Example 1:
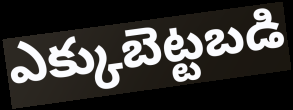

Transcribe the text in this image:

ఎక్కుబెట్టబడి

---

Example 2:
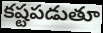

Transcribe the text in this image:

కష్టపడుతూ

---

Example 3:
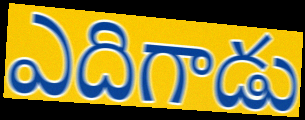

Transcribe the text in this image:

ఎదిగాడు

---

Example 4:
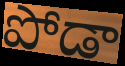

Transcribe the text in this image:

పోడా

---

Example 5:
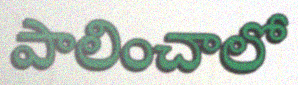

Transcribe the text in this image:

పాలించాలో